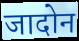
जादोन